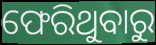
ଫେରିଥୁବାରୁ